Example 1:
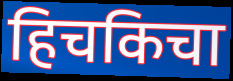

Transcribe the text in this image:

हिचकिचा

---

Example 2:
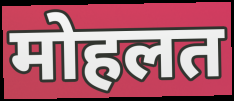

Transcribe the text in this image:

मोहलत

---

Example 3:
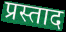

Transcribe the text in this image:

प्रस्ताद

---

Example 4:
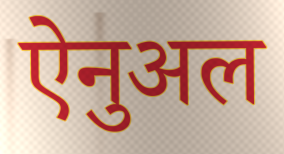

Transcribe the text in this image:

ऐनुअल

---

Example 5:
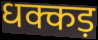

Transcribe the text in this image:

धक्कड़